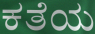
ಕತೆಯ